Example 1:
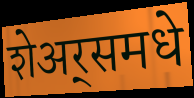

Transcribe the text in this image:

शेअर्समधे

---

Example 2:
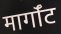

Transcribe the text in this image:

मार्गॉट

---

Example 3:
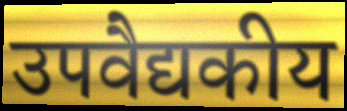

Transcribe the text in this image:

उपवैद्यकीय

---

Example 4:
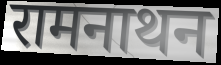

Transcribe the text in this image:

रामनाथन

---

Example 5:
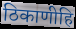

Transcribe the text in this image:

ठिकाणीहि